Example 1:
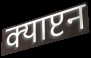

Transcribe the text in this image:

क्याप्टन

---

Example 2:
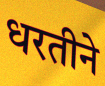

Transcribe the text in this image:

धरतीने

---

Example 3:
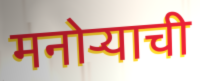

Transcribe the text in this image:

मनोऱ्याची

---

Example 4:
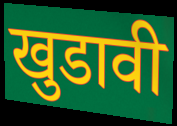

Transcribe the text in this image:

खुडावी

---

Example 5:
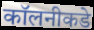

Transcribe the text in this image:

कॉलनीकडे